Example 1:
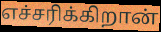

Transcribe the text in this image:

எச்சரிக்கிறான்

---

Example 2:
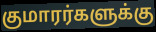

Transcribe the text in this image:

குமாரர்களுக்கு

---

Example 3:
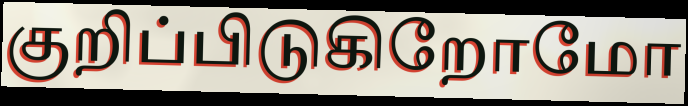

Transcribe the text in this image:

குறிப்பிடுகிறோமோ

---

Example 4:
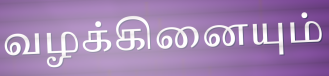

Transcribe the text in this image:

வழக்கினையும்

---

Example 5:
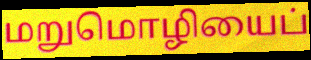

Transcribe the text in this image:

மறுமொழியைப்